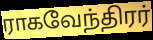
ராகவேந்திரர்